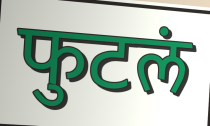
फुटलं